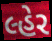
લ્હેર